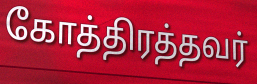
கோத்திரத்தவர்